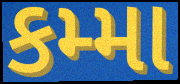
કમ્મા